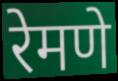
रेमणे